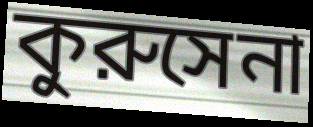
কুরুসেনা